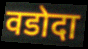
वडोदा